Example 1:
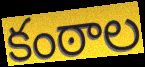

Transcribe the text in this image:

కంఠాల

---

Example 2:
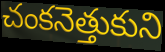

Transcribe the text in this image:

చంకనెత్తుకుని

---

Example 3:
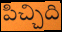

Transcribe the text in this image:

పిచ్చిది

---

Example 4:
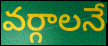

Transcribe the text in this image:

వర్గాలనే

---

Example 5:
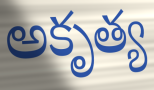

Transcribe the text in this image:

అకృత్య